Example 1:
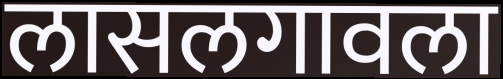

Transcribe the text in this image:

लासलगावला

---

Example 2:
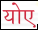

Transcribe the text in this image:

योए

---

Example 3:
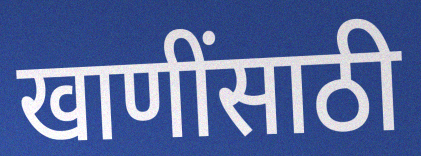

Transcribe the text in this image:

खाणींसाठी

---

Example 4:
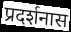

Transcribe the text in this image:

प्रदर्शनास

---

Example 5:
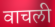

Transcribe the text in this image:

वाचली